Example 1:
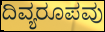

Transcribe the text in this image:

ದಿವ್ಯರೂಪವು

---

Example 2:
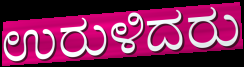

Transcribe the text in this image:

ಉರುಳಿದರು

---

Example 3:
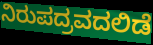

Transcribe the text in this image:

ನಿರುಪದ್ರವದಲಿಡೆ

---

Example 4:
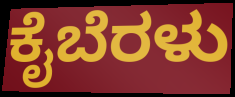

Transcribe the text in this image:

ಕೈಬೆರಳು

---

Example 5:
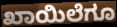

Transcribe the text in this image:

ಖಾಯಿಲೆಗೂ